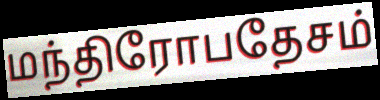
மந்திரோபதேசம்